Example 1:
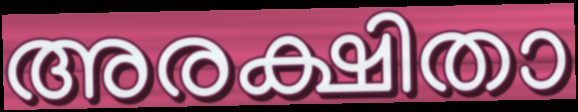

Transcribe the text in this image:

അരക്ഷിതാ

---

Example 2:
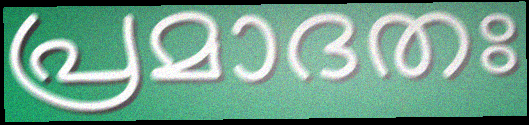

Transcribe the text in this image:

പ്രമാദതഃ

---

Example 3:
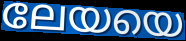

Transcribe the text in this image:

ലേയയെ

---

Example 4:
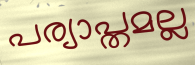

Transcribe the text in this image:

പര്യാപ്തമല്ല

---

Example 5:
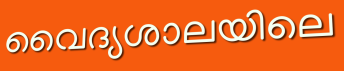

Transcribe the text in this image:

വൈദ്യശാലയിലെ